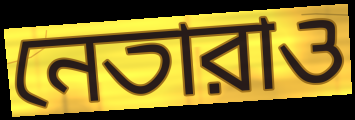
নেতারাও